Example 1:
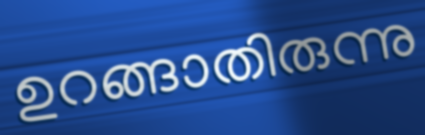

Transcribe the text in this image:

ഉറങ്ങാതിരുന്നു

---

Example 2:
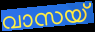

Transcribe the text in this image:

വാസയ്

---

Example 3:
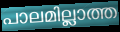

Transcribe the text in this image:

പാലമില്ലാത്ത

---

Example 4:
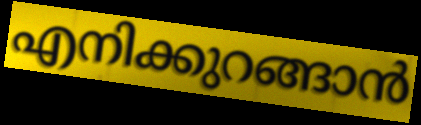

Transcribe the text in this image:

എനിക്കുറങ്ങാൻ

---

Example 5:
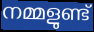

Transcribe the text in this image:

നമ്മളുണ്ട്